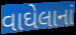
વાઘેલાનાં